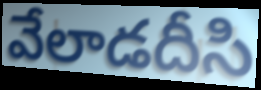
వేలాడదీసి